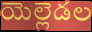
యెల్లెడల